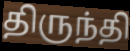
திருந்தி